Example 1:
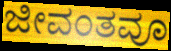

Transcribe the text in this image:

ಜೀವಂತವೂ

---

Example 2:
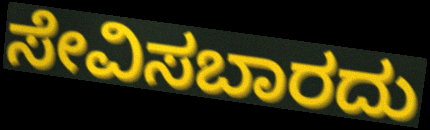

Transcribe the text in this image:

ಸೇವಿಸಬಾರದು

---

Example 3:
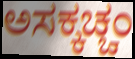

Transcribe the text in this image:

ಅಸಕ್ಕಚ್ಚಂ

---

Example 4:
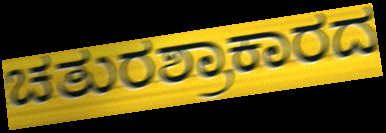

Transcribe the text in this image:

ಚತುರಶ್ರಾಕಾರದ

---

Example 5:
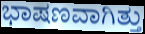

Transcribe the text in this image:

ಭಾಷಣವಾಗಿತ್ತು